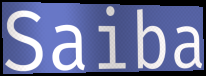
Saiba